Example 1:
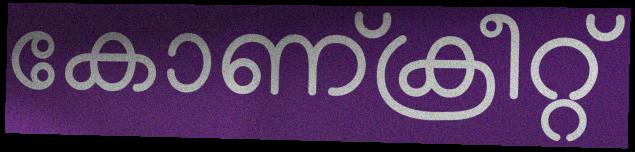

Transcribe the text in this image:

കോണ്ക്രീറ്റ്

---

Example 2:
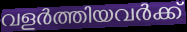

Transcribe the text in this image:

വളർത്തിയവർക്ക്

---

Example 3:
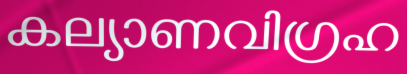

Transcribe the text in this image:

കല്യാണവിഗ്രഹ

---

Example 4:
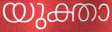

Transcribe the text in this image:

യുക്താ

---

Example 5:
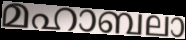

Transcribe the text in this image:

മഹാബലാ